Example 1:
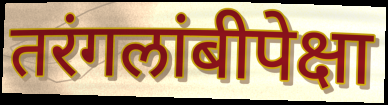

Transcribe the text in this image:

तरंगलांबीपेक्षा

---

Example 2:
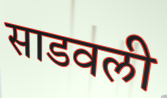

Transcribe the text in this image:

साडवली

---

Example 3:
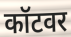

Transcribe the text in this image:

कॉटवर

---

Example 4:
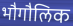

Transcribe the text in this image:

भौगौलिक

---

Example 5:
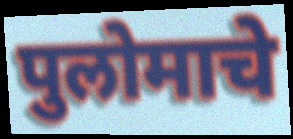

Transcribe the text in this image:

पुलोमाचे